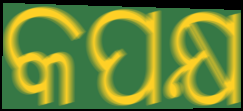
କପକ୍ଷ